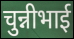
चुन्नीभाई